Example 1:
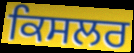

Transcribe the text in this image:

ਕਿਸਲਰ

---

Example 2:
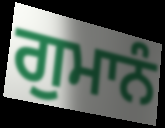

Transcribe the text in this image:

ਗੁਮਾਨੰ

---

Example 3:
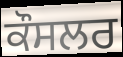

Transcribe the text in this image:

ਕੌਸਲਰ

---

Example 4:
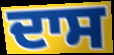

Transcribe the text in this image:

ਦਾਸ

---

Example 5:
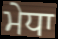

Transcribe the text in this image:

ਮੇਧਾ